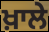
ਖ਼ਾਲੇ